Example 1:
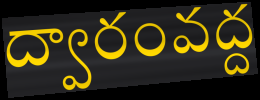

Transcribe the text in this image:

ద్వారంవద్ద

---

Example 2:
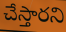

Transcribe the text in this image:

చేస్తారని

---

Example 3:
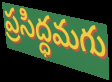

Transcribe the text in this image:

ప్రసిద్ధమగు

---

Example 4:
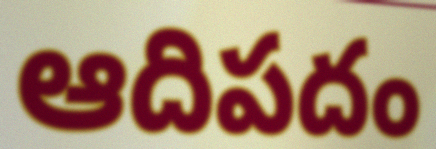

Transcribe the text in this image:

ఆదిపదం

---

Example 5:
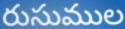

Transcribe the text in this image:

రుసుముల